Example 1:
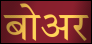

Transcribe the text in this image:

बोअर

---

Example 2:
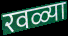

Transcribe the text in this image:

रवळ्या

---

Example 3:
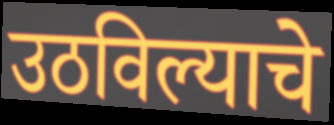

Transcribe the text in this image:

उठविल्याचे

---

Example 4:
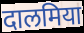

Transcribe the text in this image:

दालमिया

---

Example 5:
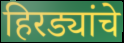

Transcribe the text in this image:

हिरड्यांचे